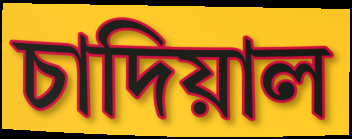
চাদিয়াল